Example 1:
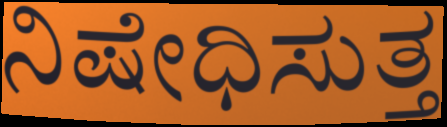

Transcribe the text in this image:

ನಿಷೇಧಿಸುತ್ತ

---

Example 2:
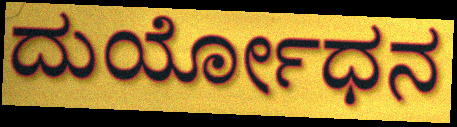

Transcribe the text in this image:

ದುರ್ಯೋಧನ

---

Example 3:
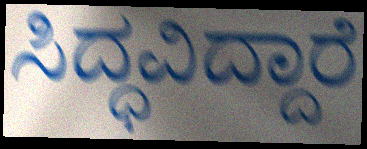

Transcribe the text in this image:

ಸಿದ್ಧವಿದ್ದಾರೆ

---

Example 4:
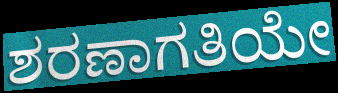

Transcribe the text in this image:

ಶರಣಾಗತಿಯೇ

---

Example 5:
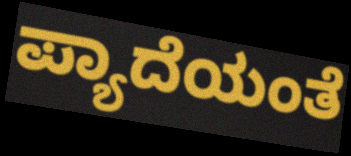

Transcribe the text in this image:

ಪ್ಯಾದೆಯಂತೆ